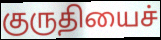
குருதியைச்